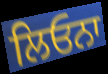
ਲਿਓਨਾ